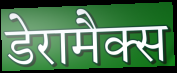
डेरामैक्स